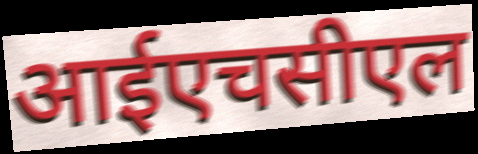
आईएचसीएल